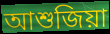
আশুজিয়া